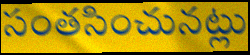
సంతసించునట్లు